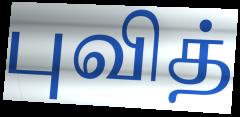
புவித்